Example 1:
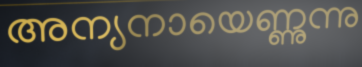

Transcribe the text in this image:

അന്യനായെണ്ണുന്നു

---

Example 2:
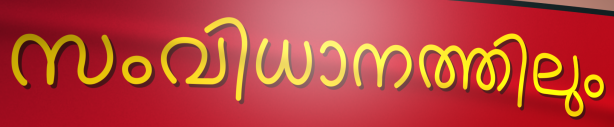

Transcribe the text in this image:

സംവിധാനത്തിലും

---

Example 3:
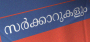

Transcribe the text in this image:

സർക്കാറുകളും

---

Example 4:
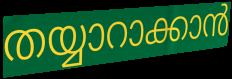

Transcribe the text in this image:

തയ്യാറാക്കാൻ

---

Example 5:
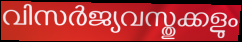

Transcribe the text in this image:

വിസർജ്യവസ്തുക്കളും